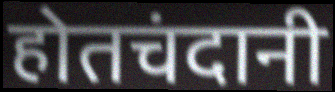
होतचंदानी